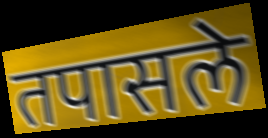
तपासले